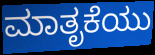
ಮಾತೃಕೆಯು